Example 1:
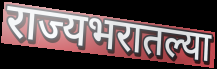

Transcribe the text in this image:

राज्यभरातल्या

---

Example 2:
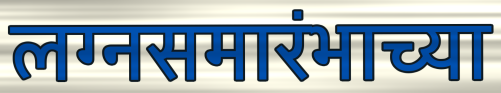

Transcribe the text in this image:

लग्नसमारंभाच्या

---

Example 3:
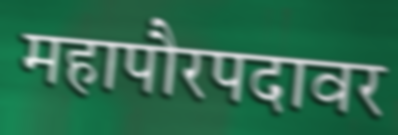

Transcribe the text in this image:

महापौरपदावर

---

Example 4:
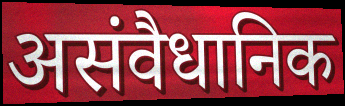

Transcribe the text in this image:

असंवैधानिक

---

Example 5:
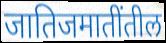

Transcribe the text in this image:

जातिजमातींतील